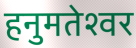
हनुमतेश्वर